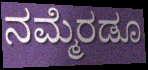
ನಮ್ಮೆರಡೂ